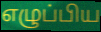
எழுப்பிய